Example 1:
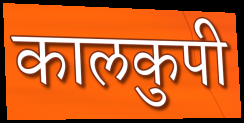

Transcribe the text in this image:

कालकुपी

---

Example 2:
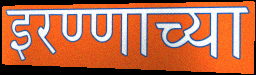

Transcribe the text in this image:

इरण्णाच्या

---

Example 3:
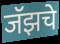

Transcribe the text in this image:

जॅझचे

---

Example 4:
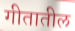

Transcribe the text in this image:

गीतातील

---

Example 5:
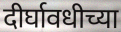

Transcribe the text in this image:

दीर्घावधीच्या